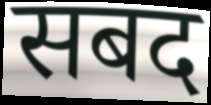
सबद